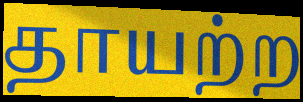
தாயற்ற